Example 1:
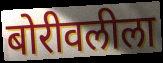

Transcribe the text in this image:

बोरीवलीला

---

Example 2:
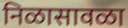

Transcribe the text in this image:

निळासावळा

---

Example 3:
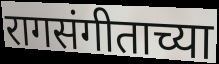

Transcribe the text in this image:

रागसंगीताच्या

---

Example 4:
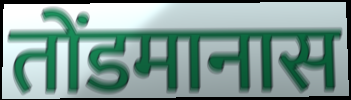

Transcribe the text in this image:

तोंडमानास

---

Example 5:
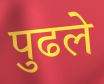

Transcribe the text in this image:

पुढले